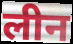
लीन